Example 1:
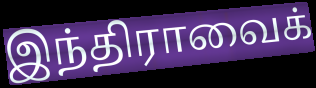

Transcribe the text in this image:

இந்திராவைக்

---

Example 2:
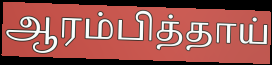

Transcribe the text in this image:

ஆரம்பித்தாய்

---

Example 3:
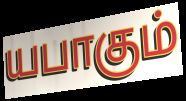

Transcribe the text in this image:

யபாகும்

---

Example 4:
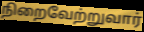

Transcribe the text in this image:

நிறைவேற்றுவார்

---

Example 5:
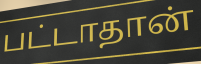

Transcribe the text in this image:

பட்டாதான்